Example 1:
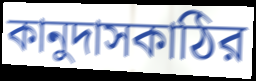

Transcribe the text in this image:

কানুদাসকাঠির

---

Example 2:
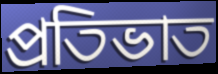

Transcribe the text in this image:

প্রতিভাত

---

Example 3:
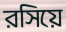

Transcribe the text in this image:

রসিয়ে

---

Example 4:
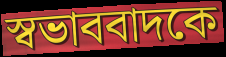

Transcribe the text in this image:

স্বভাববাদকে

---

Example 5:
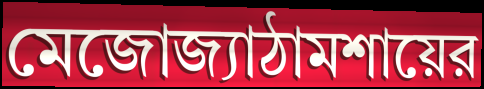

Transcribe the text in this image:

মেজোজ্যাঠামশায়ের